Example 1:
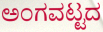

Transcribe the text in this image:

ಅಂಗವಟ್ಟದ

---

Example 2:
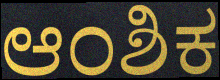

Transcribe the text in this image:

ಆಂಶಿಕ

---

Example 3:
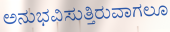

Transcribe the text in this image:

ಅನುಭವಿಸುತ್ತಿರುವಾಗಲೂ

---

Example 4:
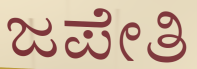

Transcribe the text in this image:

ಜಪೇತಿ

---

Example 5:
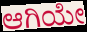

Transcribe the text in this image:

ಆಗಿಯೇ